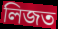
লিজত